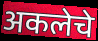
अकलेचे